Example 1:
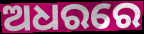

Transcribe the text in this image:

ଅଧରରେ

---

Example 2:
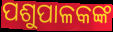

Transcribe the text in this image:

ପଶୁପାଳକଙ୍କ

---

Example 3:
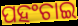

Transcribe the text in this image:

ପହଂଚାଇ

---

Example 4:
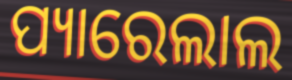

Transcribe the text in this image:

ପ୍ୟାରେଲାଲ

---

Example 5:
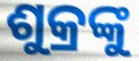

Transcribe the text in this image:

ଶୁକ୍ରଙ୍କୁ